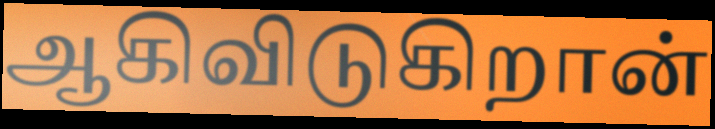
ஆகிவிடுகிறான்